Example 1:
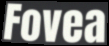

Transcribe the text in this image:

Fovea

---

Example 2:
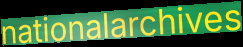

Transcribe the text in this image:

nationalarchives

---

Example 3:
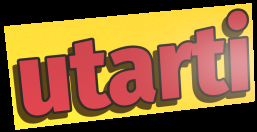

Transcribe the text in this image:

utarti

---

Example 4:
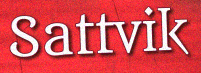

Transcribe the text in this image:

Sattvik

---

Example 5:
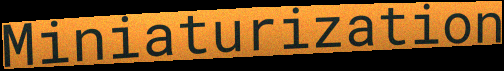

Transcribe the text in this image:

Miniaturization